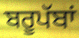
ਬਰੂਪੱਬਾਂ